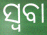
ସ୍ୱବା